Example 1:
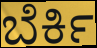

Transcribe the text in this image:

ಬೆರ್ಕಿ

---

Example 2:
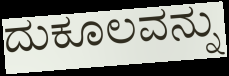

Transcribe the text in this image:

ದುಕೂಲವನ್ನು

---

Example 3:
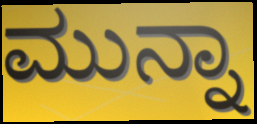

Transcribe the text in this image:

ಮುನ್ನಾ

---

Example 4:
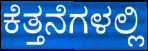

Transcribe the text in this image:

ಕೆತ್ತನೆಗಳಲ್ಲಿ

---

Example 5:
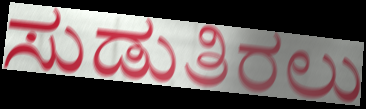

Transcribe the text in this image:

ಸುಡುತಿರಲು